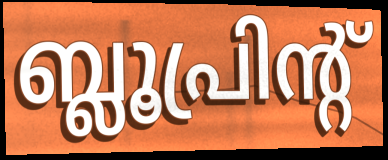
ബ്ലൂപ്രിന്റ്